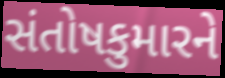
સંતોષકુમારને